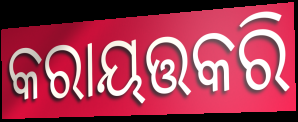
କରାୟତ୍ତକରି